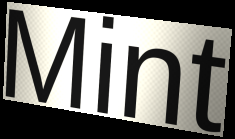
Mint